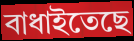
বাধাইতেছে